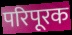
परिपूरक